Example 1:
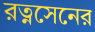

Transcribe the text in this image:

রত্নসেনের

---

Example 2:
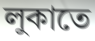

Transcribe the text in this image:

লুকাতে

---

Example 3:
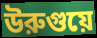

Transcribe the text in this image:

উরুগুয়ে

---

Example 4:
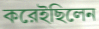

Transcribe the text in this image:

করেইছিলেন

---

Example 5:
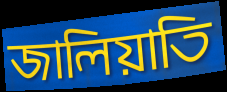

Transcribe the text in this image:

জালিয়াতি